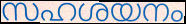
സഹശയനം